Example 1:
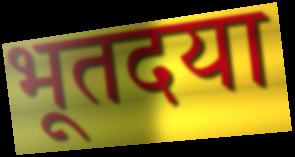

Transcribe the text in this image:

भूतदया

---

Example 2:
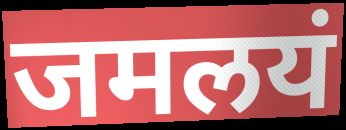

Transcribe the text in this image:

जमलयं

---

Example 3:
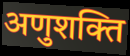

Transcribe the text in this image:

अणुशक्ति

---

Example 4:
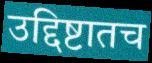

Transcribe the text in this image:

उद्दिष्टातच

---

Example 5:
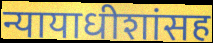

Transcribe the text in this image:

न्यायाधीशांसह